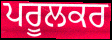
ਪਰੂਲਕਰ